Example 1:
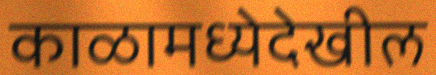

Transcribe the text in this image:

काळामध्येदेखील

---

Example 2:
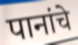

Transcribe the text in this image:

पानांचे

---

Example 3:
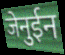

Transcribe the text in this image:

जेनुईन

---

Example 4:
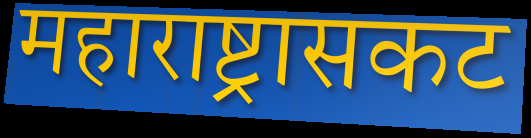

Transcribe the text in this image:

महाराष्ट्रासकट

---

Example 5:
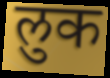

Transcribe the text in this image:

लुक